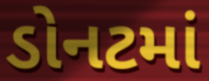
ડોનટમાં